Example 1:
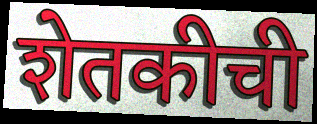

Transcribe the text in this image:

शेतकीची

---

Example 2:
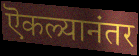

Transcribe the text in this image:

ऎकल्यानंतर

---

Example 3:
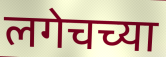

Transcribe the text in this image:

लगेचच्या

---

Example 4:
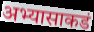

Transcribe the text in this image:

अभ्यासाकडं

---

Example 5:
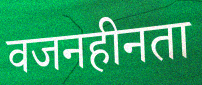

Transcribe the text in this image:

वजनहीनता